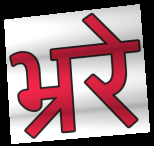
भ्ररे